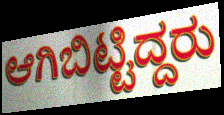
ಆಗಿಬಿಟ್ಟಿದ್ದರು